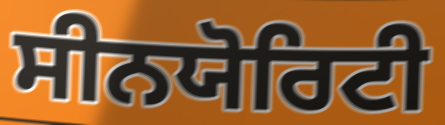
ਸੀਨਯੋਰਿਟੀ